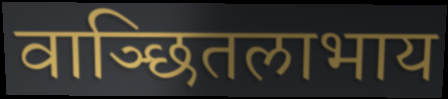
वाञ्छितलाभाय